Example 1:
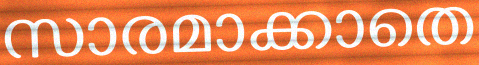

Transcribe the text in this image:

സാരമാക്കാതെ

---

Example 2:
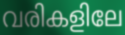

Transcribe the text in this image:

വരികളിലേ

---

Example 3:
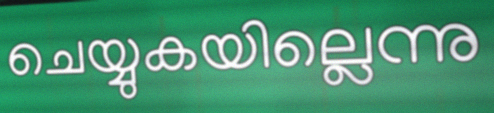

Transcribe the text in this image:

ചെയ്യുകയില്ലെന്നു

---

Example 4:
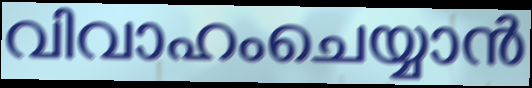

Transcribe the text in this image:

വിവാഹംചെയ്യാൻ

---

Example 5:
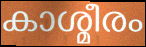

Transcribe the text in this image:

കാശ്മീരം